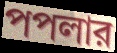
পপলার